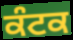
ਕੰਟਕ